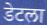
डेटला